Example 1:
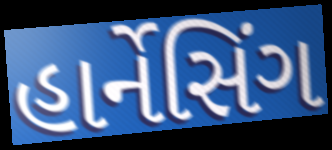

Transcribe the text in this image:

હાર્નેસિંગ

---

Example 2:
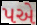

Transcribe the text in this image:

પએ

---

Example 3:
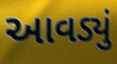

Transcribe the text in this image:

આવડ્યું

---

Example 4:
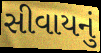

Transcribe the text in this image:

સીવાયનું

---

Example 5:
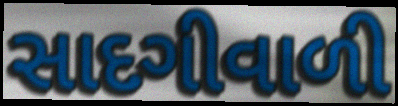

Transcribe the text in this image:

સાદગીવાળી